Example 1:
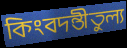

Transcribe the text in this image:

কিংবদন্তীতুল্য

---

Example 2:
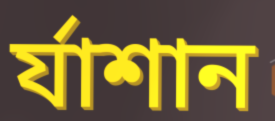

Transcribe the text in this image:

র্যাশান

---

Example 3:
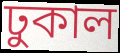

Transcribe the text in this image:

ঢুকাল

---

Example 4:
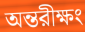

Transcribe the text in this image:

অন্তরীক্ষং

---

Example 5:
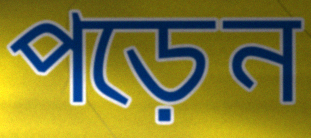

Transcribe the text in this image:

পড়েন